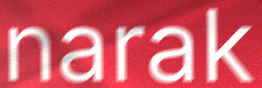
narak